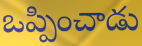
ఒప్పించాడు